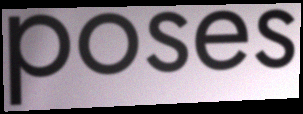
poses